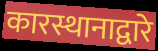
कारस्थानाद्वारे